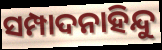
ସମ୍ପାଦନାହିନ୍ଦୁ